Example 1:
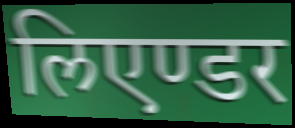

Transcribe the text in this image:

लिएण्डर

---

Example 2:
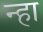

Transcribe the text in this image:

न्हा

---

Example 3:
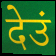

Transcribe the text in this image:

देउं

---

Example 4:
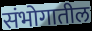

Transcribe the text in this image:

संभोगातील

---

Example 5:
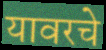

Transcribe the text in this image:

यावरचे